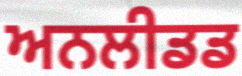
ਅਨਲੀਡਡ